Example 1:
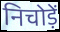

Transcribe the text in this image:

निचोड़ें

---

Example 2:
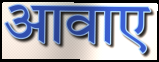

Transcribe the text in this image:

आवाए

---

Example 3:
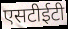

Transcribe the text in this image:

एसटीईटी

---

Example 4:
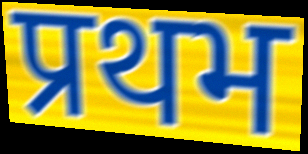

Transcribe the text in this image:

प्रथभ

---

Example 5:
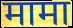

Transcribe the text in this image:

मामा